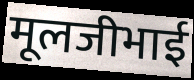
मूलजीभाई